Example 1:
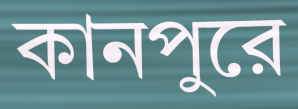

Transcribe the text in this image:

কানপুরে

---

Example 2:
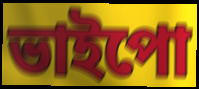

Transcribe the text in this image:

ভাইপো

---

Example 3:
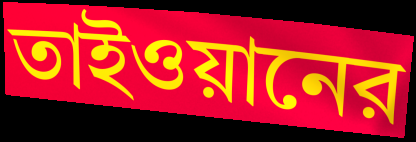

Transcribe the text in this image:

তাইওয়ানের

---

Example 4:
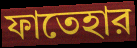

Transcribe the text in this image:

ফাতেহার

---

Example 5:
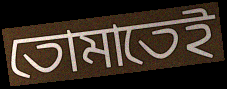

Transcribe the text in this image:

তোমাতেই